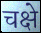
चक्षे